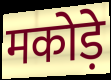
मकोड़े